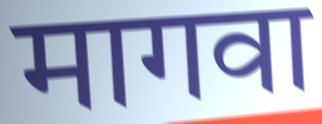
मागवा